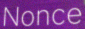
Nonce